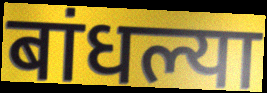
बांधल्या